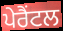
ਪੇਰੈਂਟਲ